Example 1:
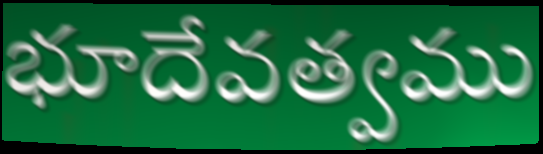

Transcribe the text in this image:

భూదేవత్వము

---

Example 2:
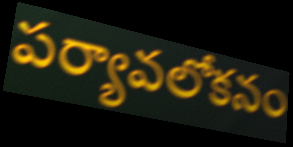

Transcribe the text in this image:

పర్యావలోకనం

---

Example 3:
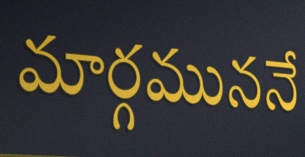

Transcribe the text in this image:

మార్గముననే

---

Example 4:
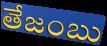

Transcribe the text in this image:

తేజంబు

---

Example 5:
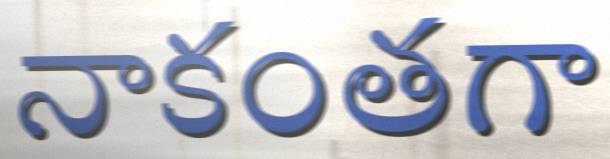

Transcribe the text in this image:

నాకంతగా